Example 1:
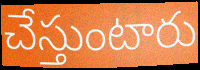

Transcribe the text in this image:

చేస్తుంటారు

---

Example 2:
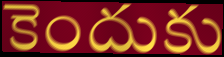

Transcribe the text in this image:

కెందుకు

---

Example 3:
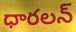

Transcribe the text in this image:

ధారలన్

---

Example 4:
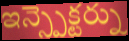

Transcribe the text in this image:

ఇన్స్పెక్టర్ను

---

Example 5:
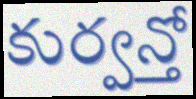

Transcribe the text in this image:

కుర్వన్తో